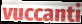
vuccanti